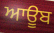
ਆਊਬ